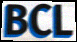
BCL